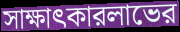
সাক্ষাৎকারলাভের